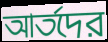
আর্তদের